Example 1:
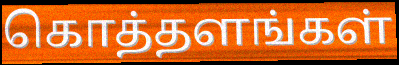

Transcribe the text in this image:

கொத்தளங்கள்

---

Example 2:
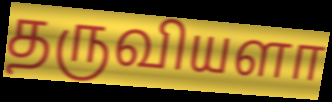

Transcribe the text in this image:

தருவியளா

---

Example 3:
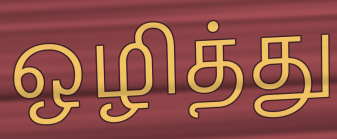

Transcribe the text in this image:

ஒழித்து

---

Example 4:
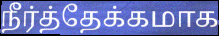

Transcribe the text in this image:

நீர்த்தேக்கமாக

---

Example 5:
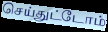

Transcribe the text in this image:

செய்துட்டோம்